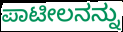
ಪಾಟೀಲನನ್ನು